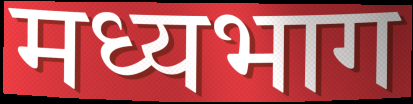
मध्यभाग